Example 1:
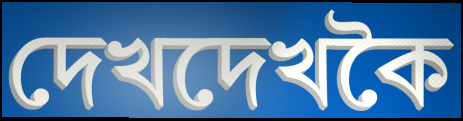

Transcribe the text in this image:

দেখদেখকৈ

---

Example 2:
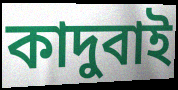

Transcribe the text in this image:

কাদুবাই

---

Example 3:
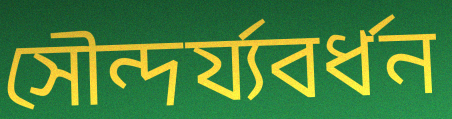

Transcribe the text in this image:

সৌন্দৰ্য্যবৰ্ধন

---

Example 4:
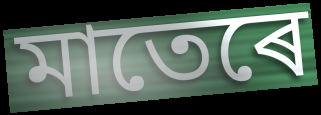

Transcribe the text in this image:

মাতেৰে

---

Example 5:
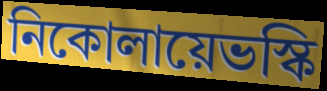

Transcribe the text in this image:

নিকোলায়েভস্কি